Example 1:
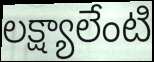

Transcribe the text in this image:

లక్ష్యాలేంటి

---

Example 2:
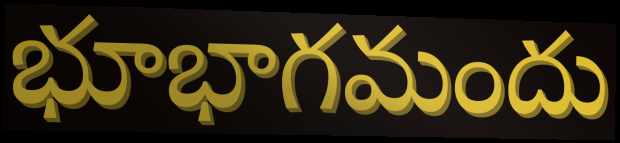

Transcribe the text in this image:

భూభాగమందు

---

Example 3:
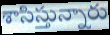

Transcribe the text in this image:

శాసిస్తున్నారు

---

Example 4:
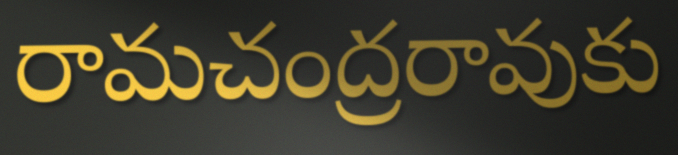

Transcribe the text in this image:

రామచంద్రరావుకు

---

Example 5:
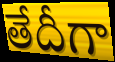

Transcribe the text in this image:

తేదీగా